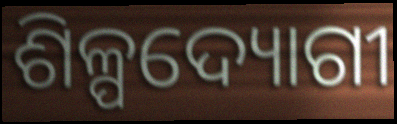
ଶିଳ୍ପଦ୍ୟୋଗୀ